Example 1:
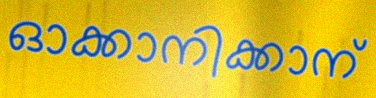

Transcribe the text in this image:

ഓക്കാനിക്കാന്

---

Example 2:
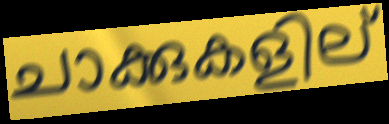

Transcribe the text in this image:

ചാക്കുകളില്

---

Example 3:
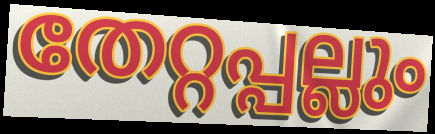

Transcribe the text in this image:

തേറ്റപ്പല്ലും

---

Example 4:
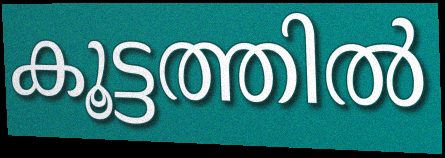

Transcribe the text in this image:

കൂട്ടത്തിൽ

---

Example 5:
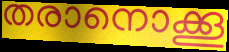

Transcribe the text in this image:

തരാനൊക്കൂ